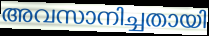
അവസാനിച്ചതായി